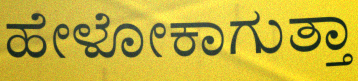
ಹೇಳೋಕಾಗುತ್ತಾ